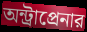
অন্ট্রাপ্রেনার